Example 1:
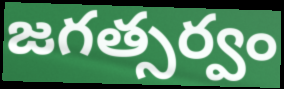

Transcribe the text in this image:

జగత్సర్వం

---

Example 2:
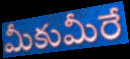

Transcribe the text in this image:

మీకుమీరే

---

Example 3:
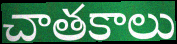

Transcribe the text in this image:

చాతకాలు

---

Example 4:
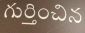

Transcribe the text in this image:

గుర్తించిన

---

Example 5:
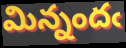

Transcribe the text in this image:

మిన్నందఁ